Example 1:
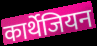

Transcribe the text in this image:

कार्थेजियन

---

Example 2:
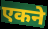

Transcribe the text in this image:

एकने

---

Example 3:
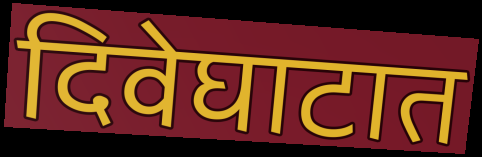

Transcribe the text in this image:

दिवेघाटात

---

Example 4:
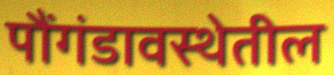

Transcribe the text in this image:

पौंगंडावस्थेतील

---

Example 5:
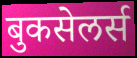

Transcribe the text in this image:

बुकसेलर्स